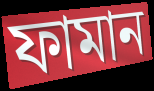
ফামান